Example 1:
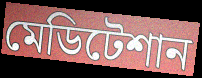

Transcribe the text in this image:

মেডিটেশান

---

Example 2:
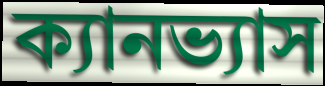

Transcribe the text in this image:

ক্যানভ্যাস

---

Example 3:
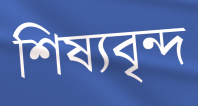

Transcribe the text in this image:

শিষ্যবৃন্দ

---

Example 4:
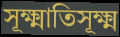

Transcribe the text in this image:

সূক্ষ্মাতিসূক্ষ্ম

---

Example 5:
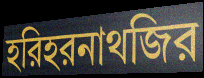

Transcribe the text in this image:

হরিহরনাথজির